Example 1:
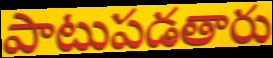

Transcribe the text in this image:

పాటుపడతారు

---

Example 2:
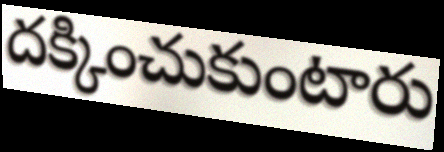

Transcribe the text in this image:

దక్కించుకుంటారు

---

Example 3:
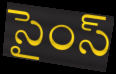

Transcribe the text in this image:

సైంస్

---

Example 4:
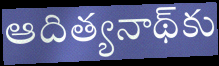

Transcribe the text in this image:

ఆదిత్యనాథ్‌కు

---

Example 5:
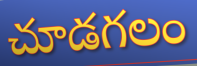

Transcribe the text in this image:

చూడగలం